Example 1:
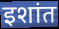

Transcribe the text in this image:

इशांत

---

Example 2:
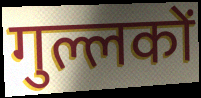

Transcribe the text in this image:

गुल्लकों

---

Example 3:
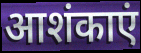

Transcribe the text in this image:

आशंकाएं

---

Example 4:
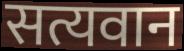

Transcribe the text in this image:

सत्यवान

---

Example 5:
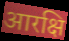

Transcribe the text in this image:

आरक्षि